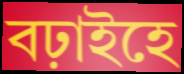
বঢ়াইহে